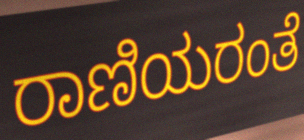
ರಾಣಿಯರಂತೆ